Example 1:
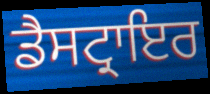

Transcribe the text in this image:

ਡੈਸਟ੍ਰਾਇਰ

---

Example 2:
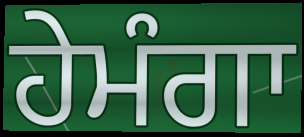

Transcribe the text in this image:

ਹੇਮੰਗਾ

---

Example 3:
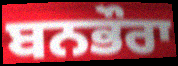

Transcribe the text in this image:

ਬਨਭੌਰਾ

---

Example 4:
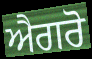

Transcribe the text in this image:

ਐਗਰੋ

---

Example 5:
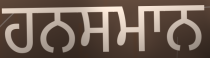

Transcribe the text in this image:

ਹਨਸਮਾਨ